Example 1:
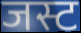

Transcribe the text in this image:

जस्ट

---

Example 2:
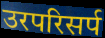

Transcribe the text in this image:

उरपरिसर्प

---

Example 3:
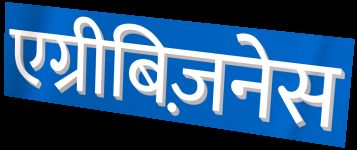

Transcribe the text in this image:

एग्रीबिज़नेस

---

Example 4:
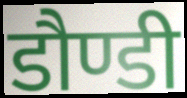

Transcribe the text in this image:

डौण्डी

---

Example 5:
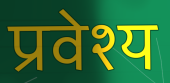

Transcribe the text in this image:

प्रवेश्य